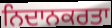
ਨਿਦਾਨਕਰਤਾ